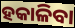
ହକାଳିବା